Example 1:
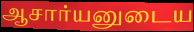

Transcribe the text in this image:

ஆசார்யனுடைய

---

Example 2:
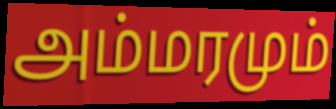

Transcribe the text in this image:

அம்மரமும்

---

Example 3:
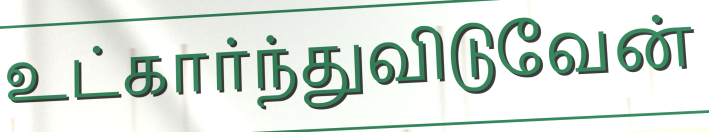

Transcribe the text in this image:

உட்கார்ந்துவிடுவேன்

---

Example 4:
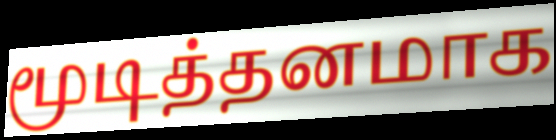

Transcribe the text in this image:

மூடித்தனமாக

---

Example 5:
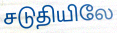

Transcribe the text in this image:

சடுதியிலே